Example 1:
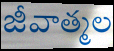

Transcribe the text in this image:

జీవాత్మల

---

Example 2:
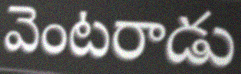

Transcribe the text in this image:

వెంటరాడు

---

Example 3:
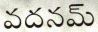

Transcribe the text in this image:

వదనమ్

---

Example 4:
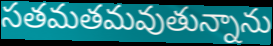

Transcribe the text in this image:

సతమతమవుతున్నాను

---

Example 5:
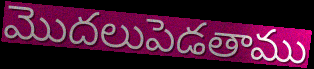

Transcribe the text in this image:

మొదలుపెడతాము